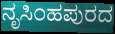
ನೃಸಿಂಹಪುರದ